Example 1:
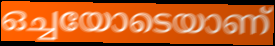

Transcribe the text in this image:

ഒച്ചയോടെയാണ്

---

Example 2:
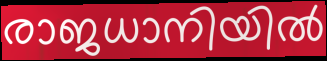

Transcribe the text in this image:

രാജധാനിയിൽ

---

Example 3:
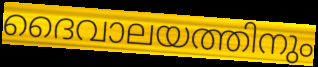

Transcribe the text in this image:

ദൈവാലയത്തിനും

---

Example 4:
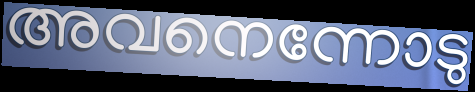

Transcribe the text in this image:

അവനെന്നോടു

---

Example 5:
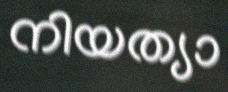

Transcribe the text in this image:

നിയത്യാ